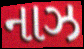
નાઝ